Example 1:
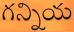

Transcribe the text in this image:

గన్నియ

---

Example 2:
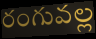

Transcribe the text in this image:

రంగువల్ల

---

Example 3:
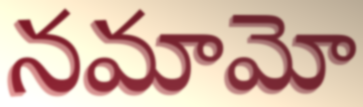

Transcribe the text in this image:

నమామో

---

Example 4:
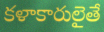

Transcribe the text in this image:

కళాకారులైతే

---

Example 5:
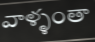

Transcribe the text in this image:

వాళ్ళంతా